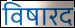
विषारद